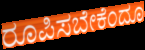
ರೂಪಿಸಬೇಕೆಂದೂ